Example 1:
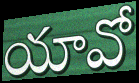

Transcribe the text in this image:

యావో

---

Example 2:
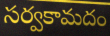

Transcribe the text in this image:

సర్వకామదం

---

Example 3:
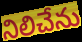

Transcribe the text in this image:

నిలిచేను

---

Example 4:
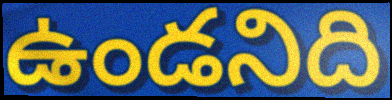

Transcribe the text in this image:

ఉండనిది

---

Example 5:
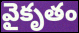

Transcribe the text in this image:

వైకృతం